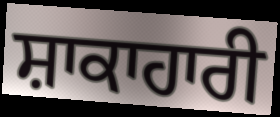
ਸ਼ਾਕਾਹਾਰੀ